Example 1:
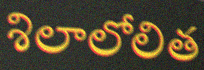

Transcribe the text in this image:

శిలాలోలిత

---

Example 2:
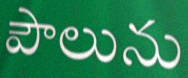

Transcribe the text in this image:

పౌలును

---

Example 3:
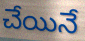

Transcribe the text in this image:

చేయినే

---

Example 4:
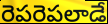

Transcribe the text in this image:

రెపరెపలాడే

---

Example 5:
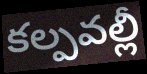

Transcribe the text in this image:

కల్పవల్లీ